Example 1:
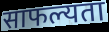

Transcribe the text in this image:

साफल्यता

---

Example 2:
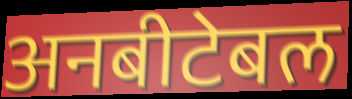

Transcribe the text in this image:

अनबीटेबल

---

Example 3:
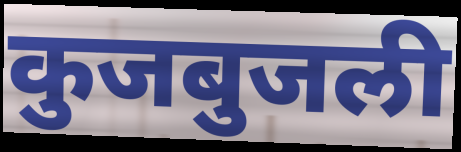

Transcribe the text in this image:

कुजबुजली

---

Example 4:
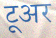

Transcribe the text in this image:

टूअर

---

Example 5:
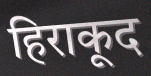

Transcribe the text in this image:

हिराकूद